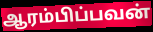
ஆரம்பிப்பவன்